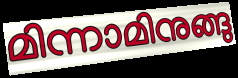
മിന്നാമിനുങ്ങു